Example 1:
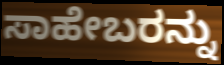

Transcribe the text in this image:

ಸಾಹೇಬರನ್ನು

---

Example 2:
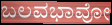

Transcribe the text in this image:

ಬಲವಭಾವೋ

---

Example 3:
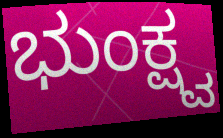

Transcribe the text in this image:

ಭುಂಕ್ಷ್ವ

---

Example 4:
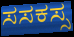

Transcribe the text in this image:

ಸಸಕಸ್ಸ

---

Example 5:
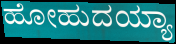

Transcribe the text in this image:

ಹೋಹುದಯ್ಯಾ